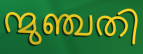
ന്മുഞ്ചതി